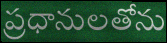
ప్రధానులతోను